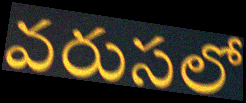
వరుసలో